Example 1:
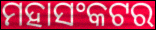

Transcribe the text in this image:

ମହାସଂକଟର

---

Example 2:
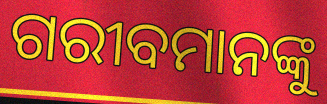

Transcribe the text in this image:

ଗରୀବମାନଙ୍କୁ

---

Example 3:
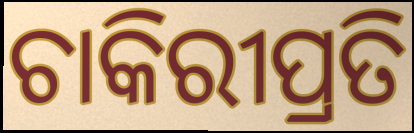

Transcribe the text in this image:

ଚାକିରୀପ୍ରତି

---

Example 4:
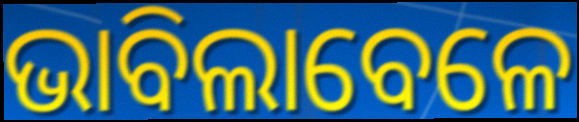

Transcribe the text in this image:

ଭାବିଲାବେଳେ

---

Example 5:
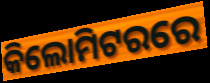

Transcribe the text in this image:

କିଲୋମିଟରରେ